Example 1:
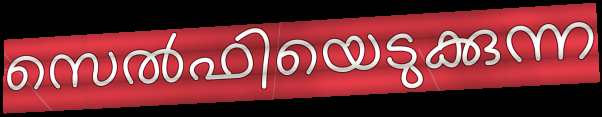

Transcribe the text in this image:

സെൽഫിയെടുക്കുന്ന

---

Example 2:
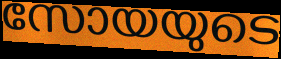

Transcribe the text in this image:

സോയയുടെ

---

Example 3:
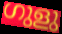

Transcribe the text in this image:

ഗുളു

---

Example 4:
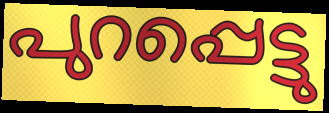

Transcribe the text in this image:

പുറപ്പെട്ടു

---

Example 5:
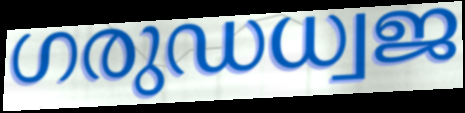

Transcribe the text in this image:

ഗരുഡധ്വജ